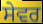
ਸੇਵਰ